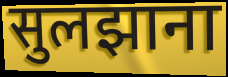
सुलझाना